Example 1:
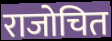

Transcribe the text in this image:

राजोचित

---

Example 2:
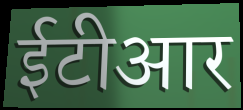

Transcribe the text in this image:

ईटीआर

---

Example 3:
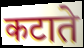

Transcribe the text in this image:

कटाते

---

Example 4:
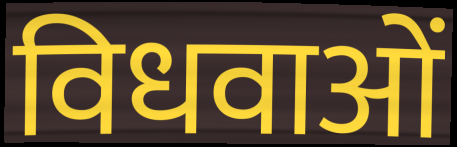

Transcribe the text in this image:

विधवाओं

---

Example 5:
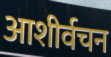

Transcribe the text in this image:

आशीर्वचन